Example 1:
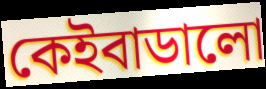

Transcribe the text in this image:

কেইবাডালো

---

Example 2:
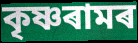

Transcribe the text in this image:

কৃষ্ণৰামৰ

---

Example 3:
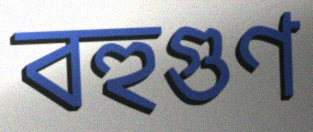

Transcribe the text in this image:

বহুগুণ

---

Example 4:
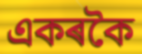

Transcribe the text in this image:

একৰকৈ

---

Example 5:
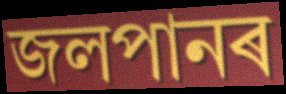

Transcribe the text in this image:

জলপানৰ